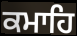
ਕਮਾਹਿ